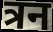
त्रन